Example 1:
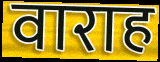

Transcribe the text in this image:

वाराह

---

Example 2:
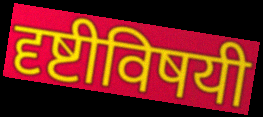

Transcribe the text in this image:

दृष्टीविषयी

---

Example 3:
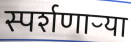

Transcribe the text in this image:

स्पर्शणाऱ्या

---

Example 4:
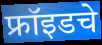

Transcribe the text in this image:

फ्रॉइडचे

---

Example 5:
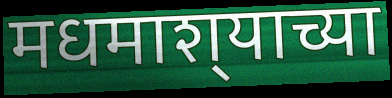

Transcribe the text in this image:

मधमाश्याच्या